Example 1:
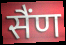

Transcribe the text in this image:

सैंण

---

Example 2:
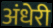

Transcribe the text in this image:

अंधेरी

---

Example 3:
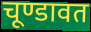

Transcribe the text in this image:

चूण्डावत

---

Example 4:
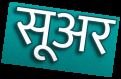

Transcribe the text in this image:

सूअर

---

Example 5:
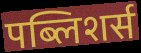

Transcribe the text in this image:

पब्लिशर्स